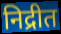
निद्रीत